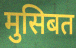
मुसिबत